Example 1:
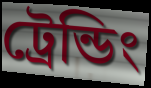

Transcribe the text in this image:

ট্রেন্ডিং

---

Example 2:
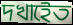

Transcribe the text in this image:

দখাইেত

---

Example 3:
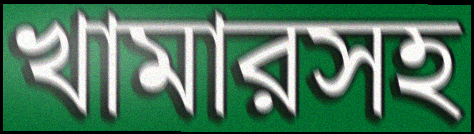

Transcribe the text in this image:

খামারসহ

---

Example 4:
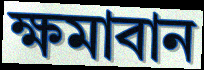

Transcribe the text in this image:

ক্ষমাবান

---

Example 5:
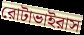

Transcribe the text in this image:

রোটাভাইরাস